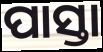
ପାସ୍ତା